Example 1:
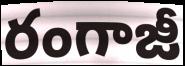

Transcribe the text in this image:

రంగాజీ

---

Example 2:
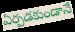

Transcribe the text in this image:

ఏర్పడకుండానే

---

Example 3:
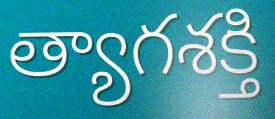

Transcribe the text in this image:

త్యాగశక్తి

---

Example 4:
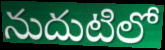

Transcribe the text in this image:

నుదుటిలో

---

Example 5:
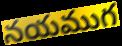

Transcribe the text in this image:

నయముగ